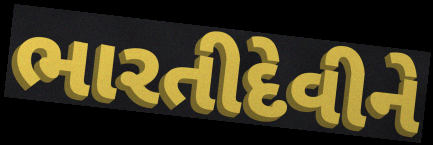
ભારતીદેવીને